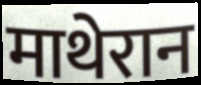
माथेरान